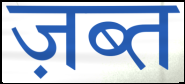
ज़ब्त